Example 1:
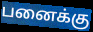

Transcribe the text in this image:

பனைக்கு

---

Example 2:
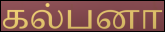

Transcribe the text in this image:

கல்பனா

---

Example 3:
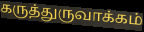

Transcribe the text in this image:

கருத்துருவாக்கம்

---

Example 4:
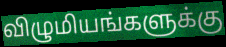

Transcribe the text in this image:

விழுமியங்களுக்கு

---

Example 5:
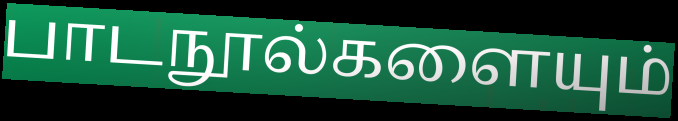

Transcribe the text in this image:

பாடநூல்களையும்